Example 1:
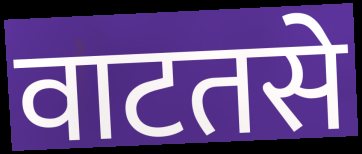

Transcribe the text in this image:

वाटतसे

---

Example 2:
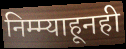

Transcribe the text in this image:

निम्म्याहूनही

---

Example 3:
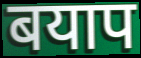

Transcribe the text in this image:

बयाप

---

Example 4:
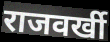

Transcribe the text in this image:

राजवर्खी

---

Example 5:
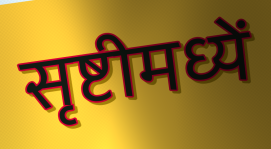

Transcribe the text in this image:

सृष्टीमध्यें